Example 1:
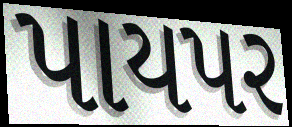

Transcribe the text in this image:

પાયપર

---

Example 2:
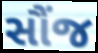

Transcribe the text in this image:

સૌંજ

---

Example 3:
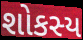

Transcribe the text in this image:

શોકસ્ય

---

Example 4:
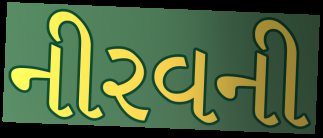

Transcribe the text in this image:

નીરવની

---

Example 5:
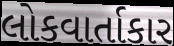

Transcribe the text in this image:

લોકવાર્તાકાર